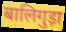
बालिगुड़ा